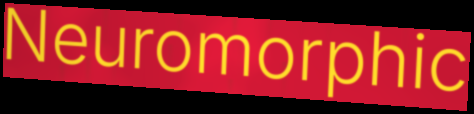
Neuromorphic